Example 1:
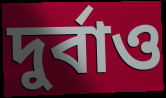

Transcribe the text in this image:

দুর্বাও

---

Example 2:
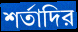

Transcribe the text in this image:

শর্তাদির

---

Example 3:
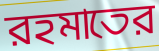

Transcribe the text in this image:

রহমাতের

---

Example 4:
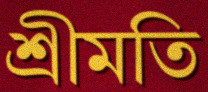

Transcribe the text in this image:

শ্রীমতি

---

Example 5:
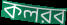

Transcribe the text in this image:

কলরব